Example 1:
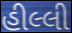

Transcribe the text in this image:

હીલ્લી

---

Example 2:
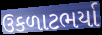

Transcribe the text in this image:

ઉકળાટભર્યા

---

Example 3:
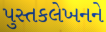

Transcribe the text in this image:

પુસ્તકલેખનને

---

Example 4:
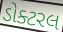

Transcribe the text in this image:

ડોક્ટરલ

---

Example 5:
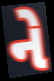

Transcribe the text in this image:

ને